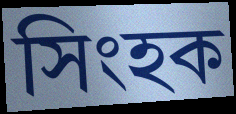
সিংহক